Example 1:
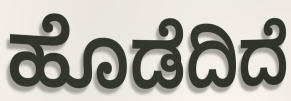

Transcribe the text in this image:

ಹೊಡೆದಿದೆ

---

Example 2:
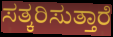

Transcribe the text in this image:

ಸತ್ಕರಿಸುತ್ತಾರೆ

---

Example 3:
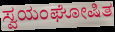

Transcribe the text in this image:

ಸ್ವಯಂಘೋಷಿತ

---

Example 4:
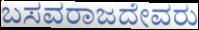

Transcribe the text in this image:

ಬಸವರಾಜದೇವರು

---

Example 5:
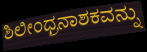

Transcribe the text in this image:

ಶಿಲೀಂಧ್ರನಾಶಕವನ್ನು